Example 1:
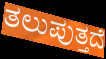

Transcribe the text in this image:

ತಲುಪುತ್ತದೆ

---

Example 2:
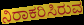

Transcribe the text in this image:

ನಿರಾಕರಿಸಿರುವ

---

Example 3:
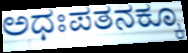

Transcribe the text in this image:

ಅಧಃಪತನಕ್ಕೂ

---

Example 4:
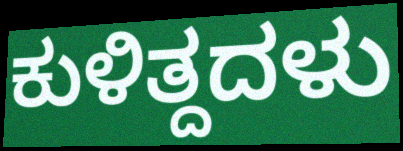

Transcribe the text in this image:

ಕುಳಿತ್ದದಳು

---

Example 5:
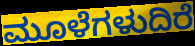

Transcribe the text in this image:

ಮೂಳೆಗಳುದಿರೆ